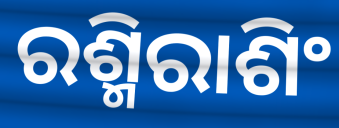
ରଶ୍ମିରାଶିଂ